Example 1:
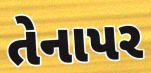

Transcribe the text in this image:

તેનાપર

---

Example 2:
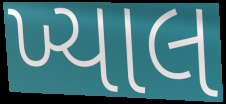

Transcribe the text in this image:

ખ્યાલ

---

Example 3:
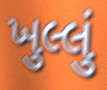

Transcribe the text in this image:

ખુલ્લું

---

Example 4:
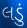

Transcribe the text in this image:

લડું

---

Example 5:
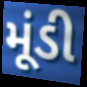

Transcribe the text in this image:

મૂંડી